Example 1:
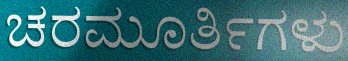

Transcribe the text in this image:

ಚರಮೂರ್ತಿಗಳು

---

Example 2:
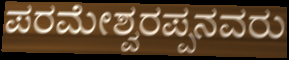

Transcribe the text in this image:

ಪರಮೇಶ್ವರಪ್ಪನವರು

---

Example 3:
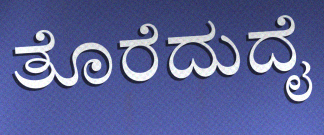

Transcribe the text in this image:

ತೊರೆದುದೈ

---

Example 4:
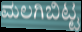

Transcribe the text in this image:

ಮಲಗಿಬಿಟ್ಟ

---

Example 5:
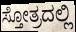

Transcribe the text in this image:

ಸ್ತೋತ್ರದಲ್ಲಿ